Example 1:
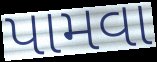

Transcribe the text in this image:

પામવા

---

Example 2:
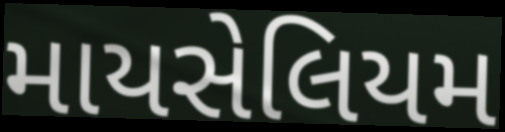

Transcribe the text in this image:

માયસેલિયમ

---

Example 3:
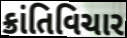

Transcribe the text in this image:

ક્રાંતિવિચાર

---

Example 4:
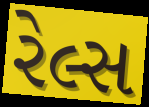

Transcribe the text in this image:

રેલ્સ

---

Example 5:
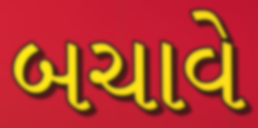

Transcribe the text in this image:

બચાવે